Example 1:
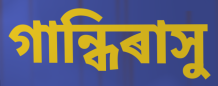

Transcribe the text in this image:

গান্ধিৰাসু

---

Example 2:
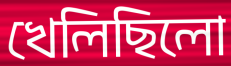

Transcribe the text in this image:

খেলিছিলো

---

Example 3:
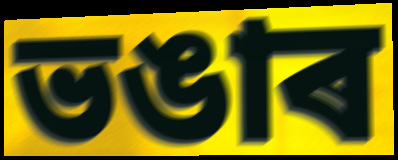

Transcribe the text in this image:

ভঙাৰ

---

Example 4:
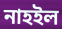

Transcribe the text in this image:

নাহইল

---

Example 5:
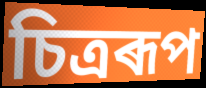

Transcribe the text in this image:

চিত্ৰৰূপ